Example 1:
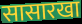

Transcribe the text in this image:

सासारखा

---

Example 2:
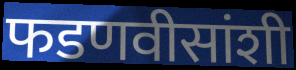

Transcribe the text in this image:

फडणवीसांशी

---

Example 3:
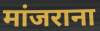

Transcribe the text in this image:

मांजराना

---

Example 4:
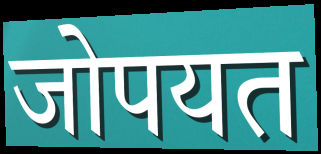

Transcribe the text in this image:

जोपयत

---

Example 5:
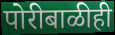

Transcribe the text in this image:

पोरीबाळीही